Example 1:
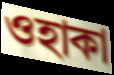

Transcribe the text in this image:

ওহাকা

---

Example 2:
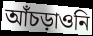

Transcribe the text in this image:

আঁচড়াওনি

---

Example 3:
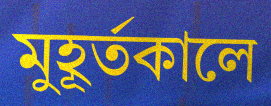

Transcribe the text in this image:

মুহূর্তকালে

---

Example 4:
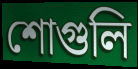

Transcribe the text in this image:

শোগুলি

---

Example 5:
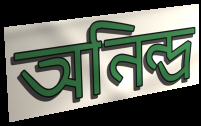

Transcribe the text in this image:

অনিন্দ্র